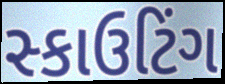
સ્કાઉટિંગ